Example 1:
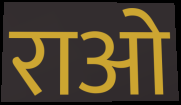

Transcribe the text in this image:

राओ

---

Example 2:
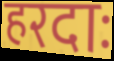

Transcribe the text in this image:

हरदाः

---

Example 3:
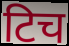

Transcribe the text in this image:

टिच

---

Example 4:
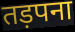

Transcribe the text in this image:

तड़पना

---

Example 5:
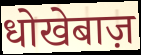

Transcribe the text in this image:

धोखेबाज़